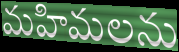
మహిమలను